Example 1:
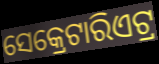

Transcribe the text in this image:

ସେକ୍ରେଟାରିଏଟ୍ର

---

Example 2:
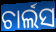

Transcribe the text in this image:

ଚାର୍ଲସ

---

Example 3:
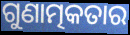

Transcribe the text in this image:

ଗୁଣାତ୍ମକତାର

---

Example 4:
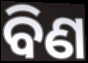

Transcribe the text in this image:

ବିଣ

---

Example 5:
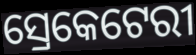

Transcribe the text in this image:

ସ୍ରେକେଟେରୀ